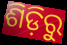
ଶିଡ଼ିରୁ